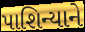
પાશિન્યાને